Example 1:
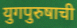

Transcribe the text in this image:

युगपुरुषाची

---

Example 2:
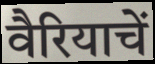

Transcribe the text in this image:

वैरियाचें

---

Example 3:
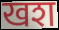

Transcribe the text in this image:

खश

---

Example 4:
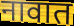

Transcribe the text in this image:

नावात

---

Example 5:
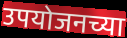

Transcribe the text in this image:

उपयोजनच्या